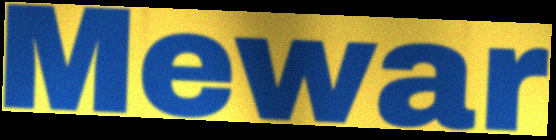
Mewar